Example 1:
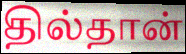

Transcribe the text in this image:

தில்தான்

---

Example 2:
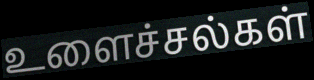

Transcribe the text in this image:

உளைச்சல்கள்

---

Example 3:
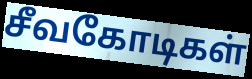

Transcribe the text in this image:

சீவகோடிகள்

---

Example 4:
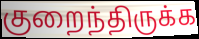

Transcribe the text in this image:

குறைந்திருக்க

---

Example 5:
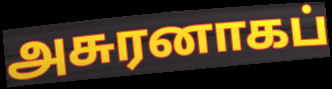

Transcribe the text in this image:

அசுரனாகப்